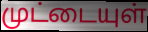
முட்டையுள்